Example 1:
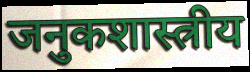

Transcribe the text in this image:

जनुकशास्त्रीय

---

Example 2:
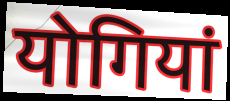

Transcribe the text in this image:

योगियां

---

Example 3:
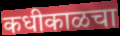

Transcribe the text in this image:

कधीकाळचा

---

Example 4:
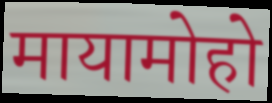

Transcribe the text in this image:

मायामोहो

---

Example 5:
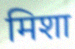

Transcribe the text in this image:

मिशा